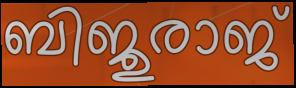
ബിജുരാജ്